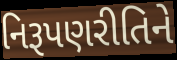
નિરૂપણરીતિને